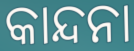
କାନ୍ଦନା